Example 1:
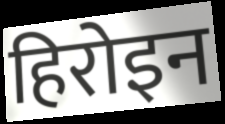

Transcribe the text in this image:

हिरोइन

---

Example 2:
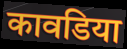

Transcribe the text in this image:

कावडिया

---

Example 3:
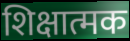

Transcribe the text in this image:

शिक्षात्मक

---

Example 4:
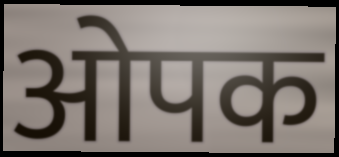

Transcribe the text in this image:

ओपक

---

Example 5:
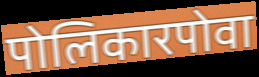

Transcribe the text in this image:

पोलिकारपोवा